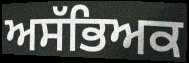
ਅਸੱਭਿਅਕ